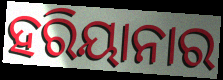
ହରିୟାନାର